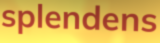
splendens